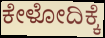
ಕೇಳೋದಿಕ್ಕೆ